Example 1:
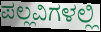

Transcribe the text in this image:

ಪಲ್ಲವಿಗಳಲ್ಲಿ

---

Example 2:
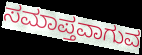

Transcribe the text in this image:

ಸಮಾಪ್ತವಾಗುವ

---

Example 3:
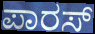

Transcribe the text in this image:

ಪಾರಸ್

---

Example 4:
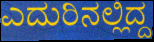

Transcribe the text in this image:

ಎದುರಿನಲ್ಲಿದ್ದ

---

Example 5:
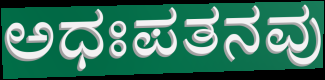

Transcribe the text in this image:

ಅಧಃಪತನವು